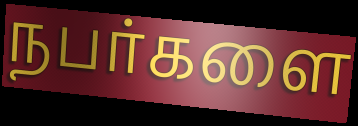
நபர்களை